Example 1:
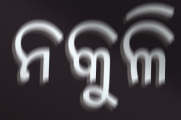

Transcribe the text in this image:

ନକୁଳି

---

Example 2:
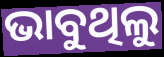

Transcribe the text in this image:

ଭାବୁଥିଲୁ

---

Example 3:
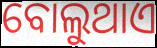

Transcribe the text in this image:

ବୋଲୁଥାଏ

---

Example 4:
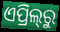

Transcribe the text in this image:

ଏପ୍ରିଲ୍‌ରୁ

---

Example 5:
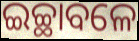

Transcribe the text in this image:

ଇଚ୍ଛାବଳେ